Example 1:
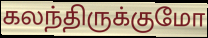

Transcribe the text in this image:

கலந்திருக்குமோ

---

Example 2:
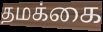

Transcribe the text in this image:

தமக்கை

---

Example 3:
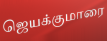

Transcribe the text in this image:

ஜெயக்குமாரை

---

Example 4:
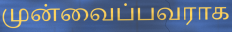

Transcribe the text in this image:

முன்வைப்பவராக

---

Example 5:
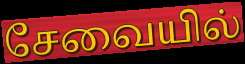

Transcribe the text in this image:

சேவையில்